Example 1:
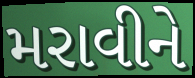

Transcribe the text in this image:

મરાવીને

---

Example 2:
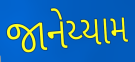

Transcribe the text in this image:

જાનેય્યામ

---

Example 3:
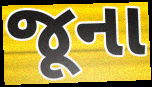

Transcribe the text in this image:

જૂના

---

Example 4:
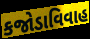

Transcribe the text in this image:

કજોડાવિવાહ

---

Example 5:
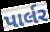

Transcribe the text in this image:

પાર્લર